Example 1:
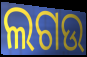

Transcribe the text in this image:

ଲଗଉ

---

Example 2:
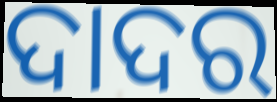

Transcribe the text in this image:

ଦାଦର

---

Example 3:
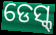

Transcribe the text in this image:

ଡେସ୍କ୍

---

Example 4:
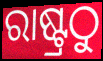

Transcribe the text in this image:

ରାଷ୍ଟ୍ରଠୁ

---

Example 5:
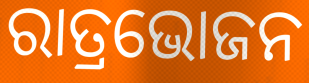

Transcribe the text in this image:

ରାତ୍ରଭୋଜନ